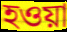
হওয়া